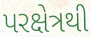
પરક્ષેત્રથી